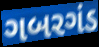
ગબરગંડ